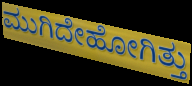
ಮುಗಿದೇಹೋಗಿತ್ತು